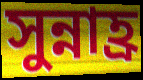
সুন্নাহ্র